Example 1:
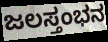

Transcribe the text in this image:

ಜಲಸ್ತಂಭನ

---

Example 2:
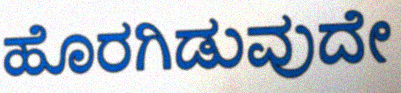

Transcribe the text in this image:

ಹೊರಗಿಡುವುದೇ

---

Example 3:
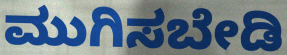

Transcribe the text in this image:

ಮುಗಿಸಬೇಡಿ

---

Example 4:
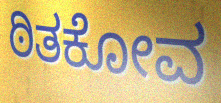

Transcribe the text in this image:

ಠಿತಕೋವ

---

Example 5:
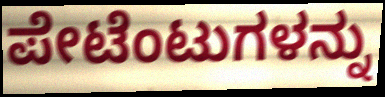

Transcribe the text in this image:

ಪೇಟೆಂಟುಗಳನ್ನು